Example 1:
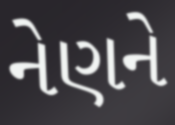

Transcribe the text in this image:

નેણને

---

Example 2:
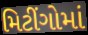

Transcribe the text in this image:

મિટીંગોમાં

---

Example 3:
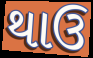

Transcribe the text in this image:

થાઉ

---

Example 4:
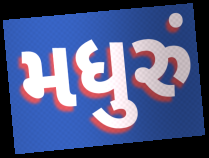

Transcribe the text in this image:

મધુરું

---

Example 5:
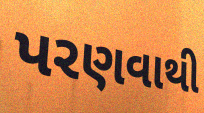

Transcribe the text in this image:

પરણવાથી